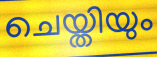
ചെയ്തിയും